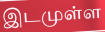
இடமுள்ள